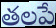
తలపే